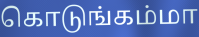
கொடுங்கம்மா